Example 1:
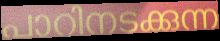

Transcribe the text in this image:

പാറിനടക്കുന്ന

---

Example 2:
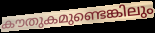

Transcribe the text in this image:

കൗതുകമുണ്ടെങ്കിലും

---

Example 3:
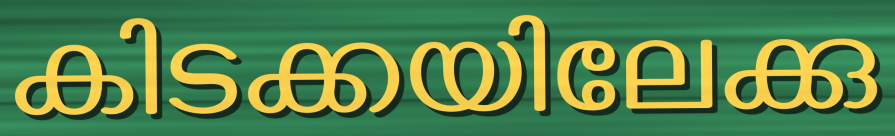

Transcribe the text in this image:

കിടക്കയിലേക്കു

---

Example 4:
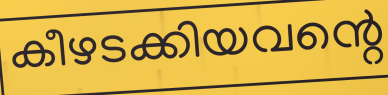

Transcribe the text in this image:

കീഴടക്കിയവന്റെ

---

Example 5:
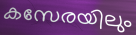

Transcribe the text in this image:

കസേരയിലും